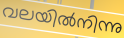
വലയിൽനിന്നു